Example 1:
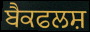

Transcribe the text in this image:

ਬੈਕਫਲਸ਼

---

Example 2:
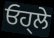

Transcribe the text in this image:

ਓਹ੍ਲੇ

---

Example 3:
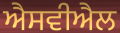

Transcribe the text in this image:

ਐਸਵੀਐਲ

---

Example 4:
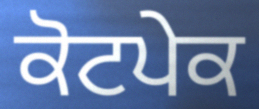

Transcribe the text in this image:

ਕੋਟਪੇਕ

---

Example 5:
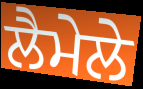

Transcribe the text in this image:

ਲੈਮੇਲੇ